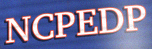
NCPEDP